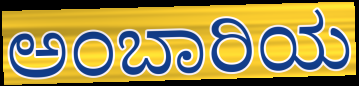
ಅಂಬಾರಿಯ